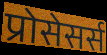
प्रोसेसर्स